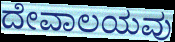
ದೇವಾಲಯವು